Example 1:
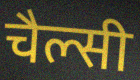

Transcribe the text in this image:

चैल्सी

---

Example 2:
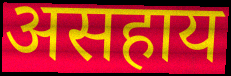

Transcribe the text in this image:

असहाय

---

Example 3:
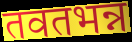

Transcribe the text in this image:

तवतभन्न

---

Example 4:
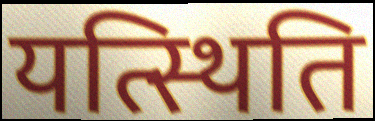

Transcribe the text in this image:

यत्स्थिति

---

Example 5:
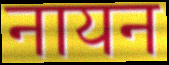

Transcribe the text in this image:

नायन